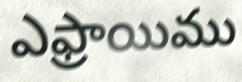
ఎఫ్రాయిము